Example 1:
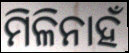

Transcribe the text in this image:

ମିଳିନାହଁ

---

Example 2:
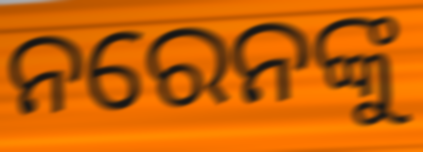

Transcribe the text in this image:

ନରେନଙ୍କୁ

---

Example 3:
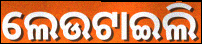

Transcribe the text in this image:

ଲେଉଟାଇଲି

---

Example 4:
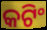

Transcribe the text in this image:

କଟିଂ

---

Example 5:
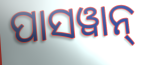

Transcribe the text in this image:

ପାସୱାନ୍